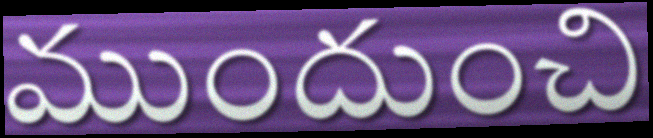
ముందుంచి